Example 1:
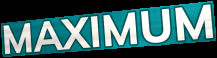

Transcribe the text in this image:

MAXIMUM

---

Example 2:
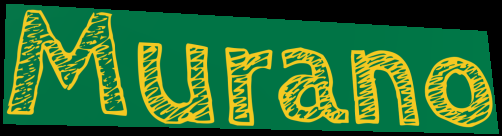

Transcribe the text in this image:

Murano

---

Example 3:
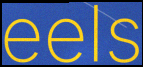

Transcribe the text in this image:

eels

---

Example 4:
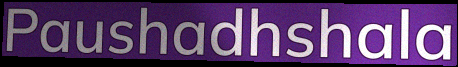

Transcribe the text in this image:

Paushadhshala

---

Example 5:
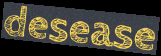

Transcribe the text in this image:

desease